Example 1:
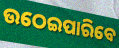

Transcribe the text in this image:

ଉଠେଇପାରିବେ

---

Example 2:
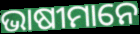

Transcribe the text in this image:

ଭାଷୀମାନେ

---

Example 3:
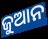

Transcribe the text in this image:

ଜୁଆନ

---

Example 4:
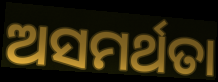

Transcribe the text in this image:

ଅସମର୍ଥତା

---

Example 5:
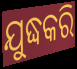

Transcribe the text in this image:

ଯୁଦ୍ଧକରି